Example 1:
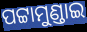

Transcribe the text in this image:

ପଟ୍ଟାମୁଣ୍ଡାଇ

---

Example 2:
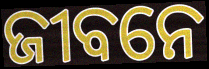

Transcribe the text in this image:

ଜୀବନେ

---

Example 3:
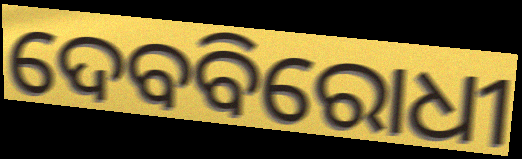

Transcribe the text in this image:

ଦେବବିରୋଧୀ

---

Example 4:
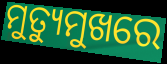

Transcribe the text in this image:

ମୁତ୍ୟୁମୁଖରେ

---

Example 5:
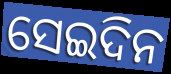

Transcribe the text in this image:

ସେଇଦିନ